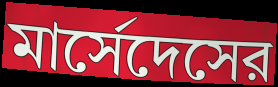
মার্সেদেসের